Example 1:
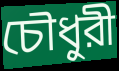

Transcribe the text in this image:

চৌধুরী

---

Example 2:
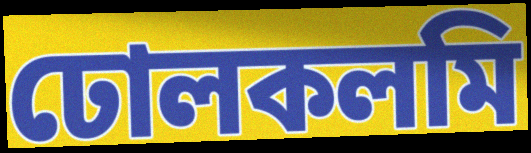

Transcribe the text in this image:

ঢোলকলমি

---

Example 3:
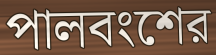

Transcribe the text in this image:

পালবংশের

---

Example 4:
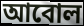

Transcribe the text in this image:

আবোল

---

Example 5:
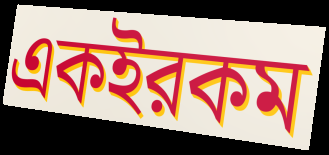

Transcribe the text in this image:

একইরকম